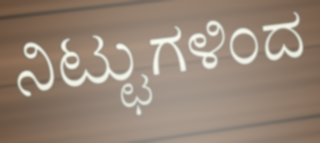
ನಿಟ್ಟುಗಳಿಂದ